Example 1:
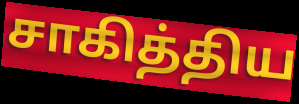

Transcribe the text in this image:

சாகித்திய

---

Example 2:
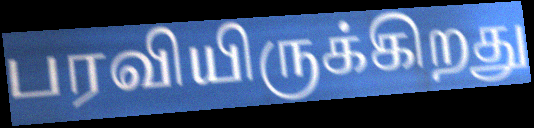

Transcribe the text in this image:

பரவியிருக்கிறது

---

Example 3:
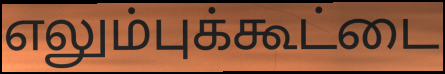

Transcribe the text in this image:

எலும்புக்கூட்டை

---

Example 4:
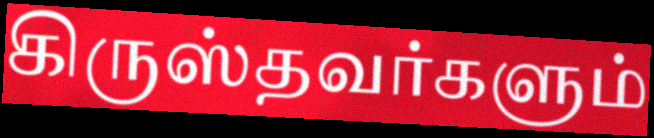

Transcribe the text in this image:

கிருஸ்தவர்களும்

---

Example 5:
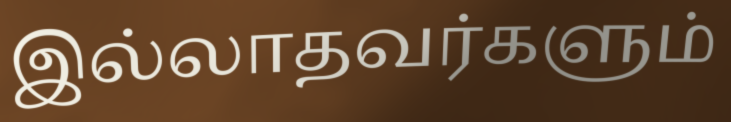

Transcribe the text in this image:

இல்லாதவர்களும்